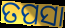
ତପସା